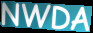
NWDA